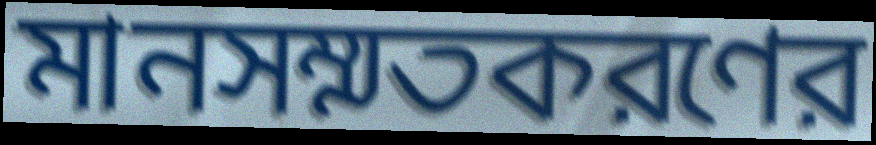
মানসম্মতকরণের